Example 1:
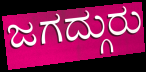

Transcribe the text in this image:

ಜಗದ್ಗುರು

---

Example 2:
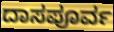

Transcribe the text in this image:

ದಾಸಪೂರ್ವ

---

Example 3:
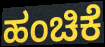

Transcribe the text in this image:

ಹಂಚಿಕೆ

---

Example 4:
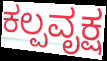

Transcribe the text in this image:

ಕಲ್ಪವೃಕ್ಷ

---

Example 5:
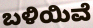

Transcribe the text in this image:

ಬಳಿಯಿವೆ